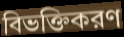
বিভক্তিকরণ